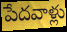
పేదవాళ్లు